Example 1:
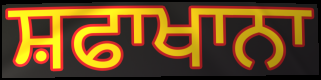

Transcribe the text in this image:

ਸ਼ਫਾਖਾਨਾ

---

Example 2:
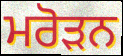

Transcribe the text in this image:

ਮਰੋੜਨ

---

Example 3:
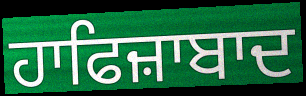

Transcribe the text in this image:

ਹਾਫਿਜ਼ਾਬਾਦ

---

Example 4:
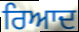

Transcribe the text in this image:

ਰਿਆਦ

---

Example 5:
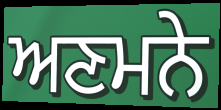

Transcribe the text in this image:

ਅਣਮਨੇ